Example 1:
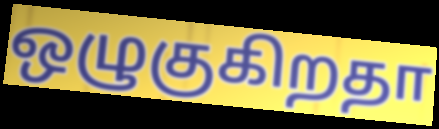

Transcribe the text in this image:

ஒழுகுகிறதா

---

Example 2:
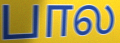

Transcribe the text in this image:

பால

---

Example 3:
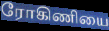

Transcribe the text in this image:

ரோகிணியை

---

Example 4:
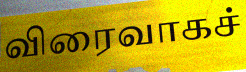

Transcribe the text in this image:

விரைவாகச்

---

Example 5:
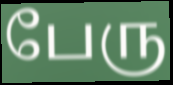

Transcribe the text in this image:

பேரு